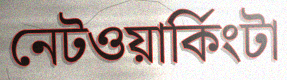
নেটওয়ার্কিংটা